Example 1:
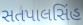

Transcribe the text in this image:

સતપાલસિંહ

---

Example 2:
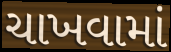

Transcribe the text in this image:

ચાખવામાં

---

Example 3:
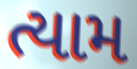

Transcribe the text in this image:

ત્યામ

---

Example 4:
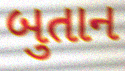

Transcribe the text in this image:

બુતાન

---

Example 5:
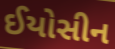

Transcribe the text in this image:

ઈયોસીન